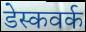
डेस्कवर्क